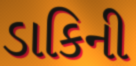
ડાકિની